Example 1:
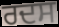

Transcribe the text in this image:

ਰਦਸ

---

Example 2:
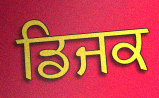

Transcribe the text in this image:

ਡਿਜਕ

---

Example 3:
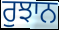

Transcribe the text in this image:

ਰੁਝਾਨ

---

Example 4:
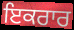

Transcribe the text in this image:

ਇਕਰਾਰ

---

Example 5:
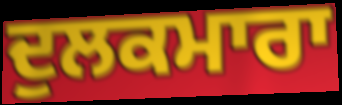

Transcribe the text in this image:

ਦੁਲਕਮਾਰਾ